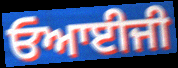
ਓਆਈਜੀ